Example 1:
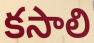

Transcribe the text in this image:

కసాలి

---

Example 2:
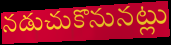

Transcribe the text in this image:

నడుచుకొనునట్లు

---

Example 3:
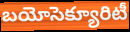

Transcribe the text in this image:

బయోసెక్యూరిటీ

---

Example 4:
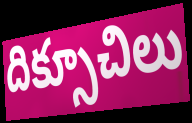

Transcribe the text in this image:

దిక్సూచిలు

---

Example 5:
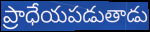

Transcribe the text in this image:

ప్రాధేయపడుతాడు